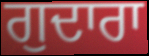
ਗੁਦਾਰਾ